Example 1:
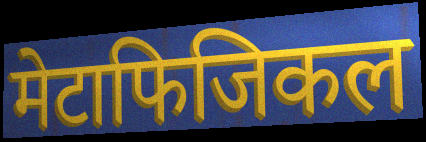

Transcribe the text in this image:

मेटाफिजिकल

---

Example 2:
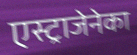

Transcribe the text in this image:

एस्ट्राजेनेका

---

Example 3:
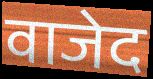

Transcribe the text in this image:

वाजेद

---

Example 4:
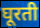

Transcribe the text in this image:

घूरती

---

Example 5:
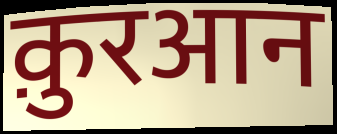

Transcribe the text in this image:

क़ुरआन